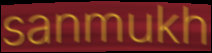
sanmukh